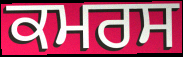
ਕਮਰਸ